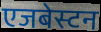
एजबेस्टन